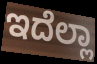
ಇದೆಲ್ಲಾ